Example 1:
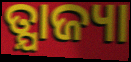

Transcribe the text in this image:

ତ୍ଯାଜ୍ୟା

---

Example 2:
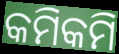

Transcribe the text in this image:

କମିକମି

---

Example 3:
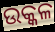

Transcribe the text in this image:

ଉକ୍କଳ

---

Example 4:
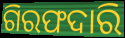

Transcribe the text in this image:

ଗିରଫଦାରି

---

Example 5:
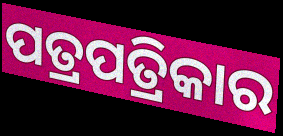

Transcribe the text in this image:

ପତ୍ରପତ୍ରିକାର